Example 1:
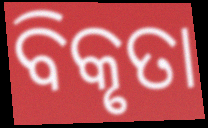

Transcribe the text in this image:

ବିକୃତା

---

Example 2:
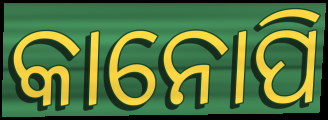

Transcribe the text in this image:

କାନୋପି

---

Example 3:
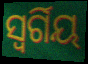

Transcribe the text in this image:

ସ୍ୱର୍ଗିୟ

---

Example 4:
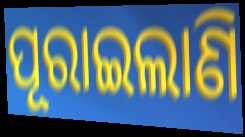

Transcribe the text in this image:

ପୂରାଇଲାଣି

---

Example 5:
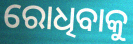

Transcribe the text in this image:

ରୋଧିବାକୁ